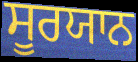
ਸੂਰਯਾਨ